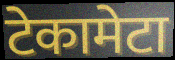
टेकामेटा